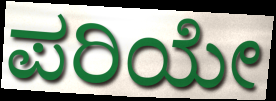
ಪರಿಯೇ